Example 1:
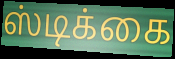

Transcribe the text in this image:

ஸ்டிக்கை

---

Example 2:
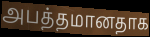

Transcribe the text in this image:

அபத்தமானதாக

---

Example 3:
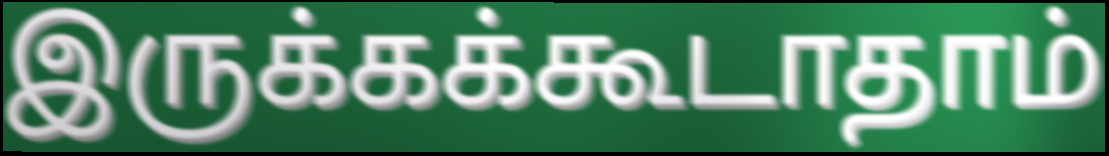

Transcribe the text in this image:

இருக்கக்கூடாதாம்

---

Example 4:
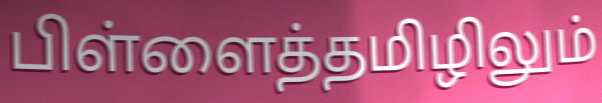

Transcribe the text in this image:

பிள்ளைத்தமிழிலும்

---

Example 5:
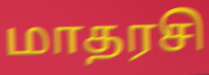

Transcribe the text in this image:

மாதரசி